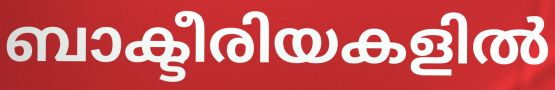
ബാക്ടീരിയകളിൽ